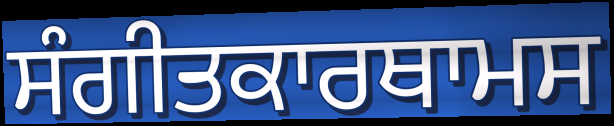
ਸੰਗੀਤਕਾਰਥਾਮਸ